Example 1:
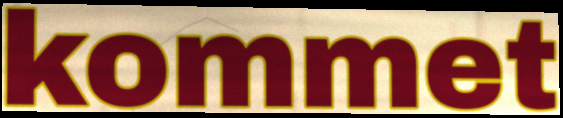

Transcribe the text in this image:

kommet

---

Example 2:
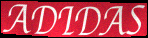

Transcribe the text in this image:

ADIDAS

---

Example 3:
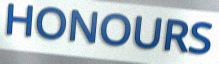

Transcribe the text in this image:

HONOURS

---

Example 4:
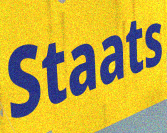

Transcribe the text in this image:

Staats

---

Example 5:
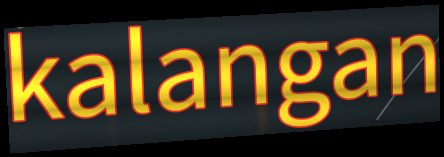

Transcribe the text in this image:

kalangan